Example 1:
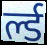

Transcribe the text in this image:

र्ल्ड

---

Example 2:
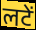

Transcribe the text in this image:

लटें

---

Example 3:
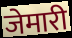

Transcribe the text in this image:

जेमारी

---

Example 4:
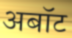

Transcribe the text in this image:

अबॉट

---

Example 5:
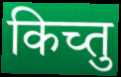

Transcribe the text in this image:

किच्तु